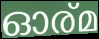
ഓര്മ